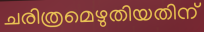
ചരിത്രമെഴുതിയതിന്